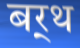
बर्थ